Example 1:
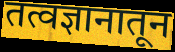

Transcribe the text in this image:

तत्वज्ञानातून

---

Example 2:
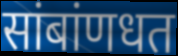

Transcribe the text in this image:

सांबांणधत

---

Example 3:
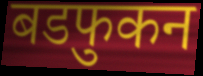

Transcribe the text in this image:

बडफुकन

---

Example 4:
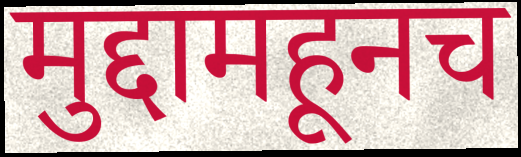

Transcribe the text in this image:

मुद्दामहूनच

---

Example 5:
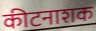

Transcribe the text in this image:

कीटनाशक